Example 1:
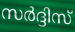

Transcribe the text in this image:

സർദ്ദിസ്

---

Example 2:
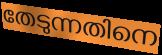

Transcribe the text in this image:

തേടുന്നതിനെ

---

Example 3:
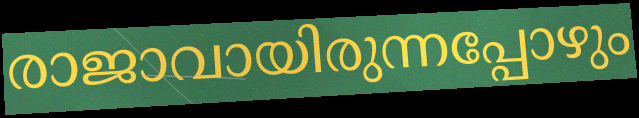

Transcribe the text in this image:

രാജാവായിരുന്നപ്പോഴും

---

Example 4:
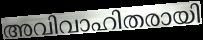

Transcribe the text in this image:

അവിവാഹിതരായി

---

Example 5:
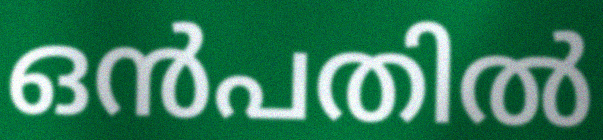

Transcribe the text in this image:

ഒൻപതിൽ